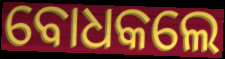
ବୋଧକଲେ